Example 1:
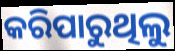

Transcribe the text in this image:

କରିପାରୁଥିଲୁ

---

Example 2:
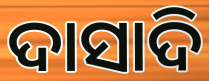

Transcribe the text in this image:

ଦାସାଦି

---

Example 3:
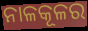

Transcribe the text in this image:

ନାଳକୂଳର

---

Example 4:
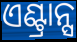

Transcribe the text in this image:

ଏଣ୍ଟ୍ରାନ୍ସ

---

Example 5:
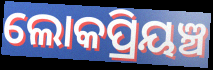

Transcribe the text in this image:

ଲୋକପ୍ରିୟଞ୍ଚ